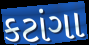
કટાંગા